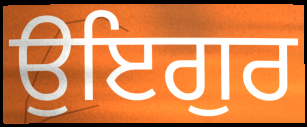
ਉਇਗੁਰ